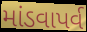
માંડવાપર્વ